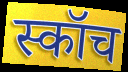
स्कॉच